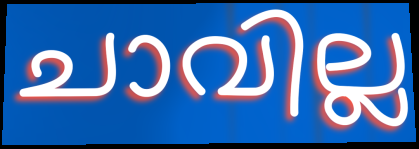
ചാവില്ല